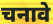
चनावे